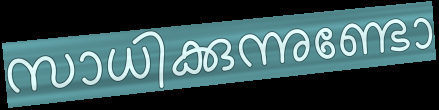
സാധിക്കുന്നുണ്ടോ